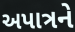
અપાત્રને